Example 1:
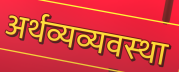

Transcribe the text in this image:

अर्थव्यव्यवस्था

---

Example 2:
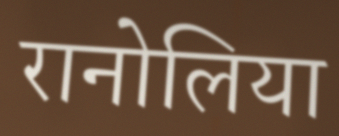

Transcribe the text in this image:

रानोलिया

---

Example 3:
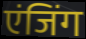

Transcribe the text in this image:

एंजिंग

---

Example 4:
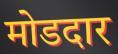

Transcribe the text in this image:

मोडदार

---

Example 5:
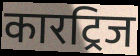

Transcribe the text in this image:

कारट्रिज